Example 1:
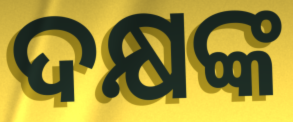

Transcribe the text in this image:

ଦକ୍ଷଙ୍କ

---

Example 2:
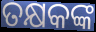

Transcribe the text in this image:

ତକ୍ଷକଙ୍କ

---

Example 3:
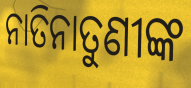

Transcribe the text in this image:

ନାତିନାତୁଣୀଙ୍କ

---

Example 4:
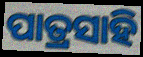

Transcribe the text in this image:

ପାତ୍ରସାହି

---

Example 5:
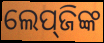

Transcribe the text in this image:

ଲେପ୍‌ଜିଙ୍କ